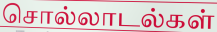
சொல்லாடல்கள்